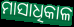
ମାସାଧିକାଳ